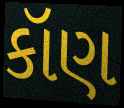
કૉણ